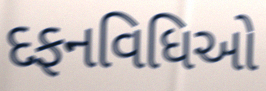
દફનવિધિઓ